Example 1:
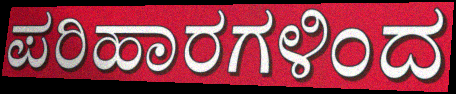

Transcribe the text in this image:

ಪರಿಹಾರಗಳಿಂದ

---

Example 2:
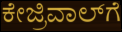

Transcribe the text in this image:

ಕೇಜ್ರಿವಾಲ್‍ಗೆ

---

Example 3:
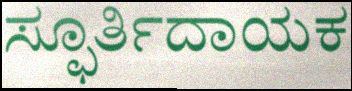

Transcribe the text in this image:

ಸ್ಫೂರ್ತಿದಾಯಕ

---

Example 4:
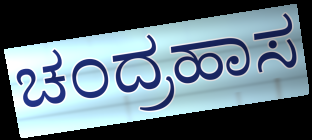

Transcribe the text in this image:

ಚಂದ್ರಹಾಸ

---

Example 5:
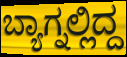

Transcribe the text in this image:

ಬ್ಯಾಗ್ನಲ್ಲಿದ್ದ